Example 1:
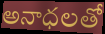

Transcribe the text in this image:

అనాధలతో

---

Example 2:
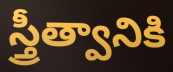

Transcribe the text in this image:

స్త్రీత్వానికి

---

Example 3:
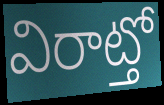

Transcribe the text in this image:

విరాట్తో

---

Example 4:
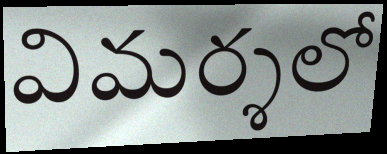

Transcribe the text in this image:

విమర్శలో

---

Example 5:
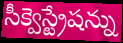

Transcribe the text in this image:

సీక్వెస్ట్రేషన్ను